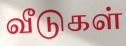
வீடுகள்